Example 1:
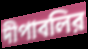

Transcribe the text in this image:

দীপাবলির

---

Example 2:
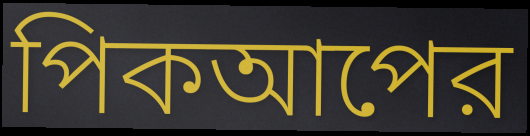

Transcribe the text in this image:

পিকআপের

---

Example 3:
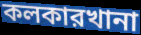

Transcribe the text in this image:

কলকারখানা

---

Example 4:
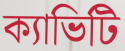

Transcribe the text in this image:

ক্যাভিটি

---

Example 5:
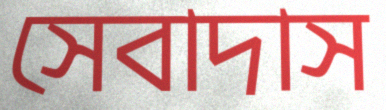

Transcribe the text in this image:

সেবাদাস